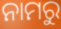
ନାମରୁ